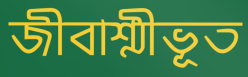
জীবাশ্মীভূত